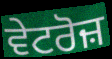
ਵੇਟਰੋਜ਼